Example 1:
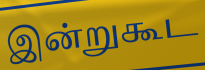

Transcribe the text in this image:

இன்றுகூட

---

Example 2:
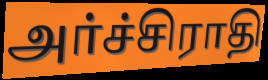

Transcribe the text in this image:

அர்ச்சிராதி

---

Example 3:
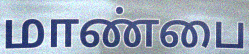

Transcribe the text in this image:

மாண்பை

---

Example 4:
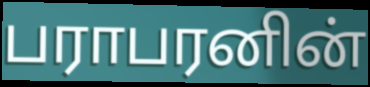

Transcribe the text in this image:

பராபரனின்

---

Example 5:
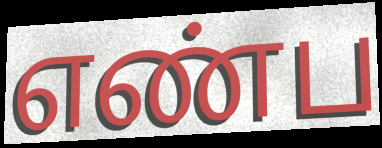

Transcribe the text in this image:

எண்ப